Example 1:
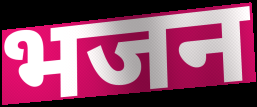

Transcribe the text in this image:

भजन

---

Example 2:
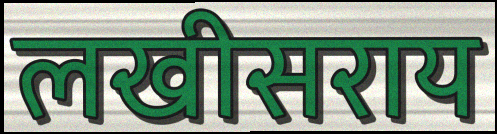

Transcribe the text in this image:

लखीसराय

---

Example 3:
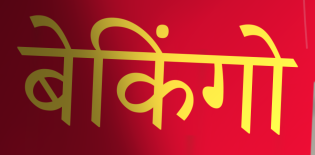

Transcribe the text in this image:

बेकिंगो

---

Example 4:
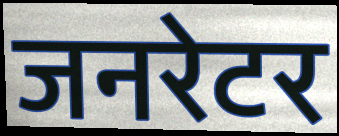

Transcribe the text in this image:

जनरेटर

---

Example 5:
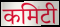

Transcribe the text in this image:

कमिटी